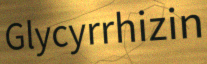
Glycyrrhizin